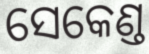
ସେକେଣ୍ଡ